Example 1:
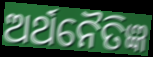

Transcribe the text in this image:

ଅର୍ଥନୈତିଜ୍ଞ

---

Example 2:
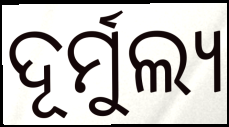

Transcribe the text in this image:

ଦୂର୍ମୁଲ୍ୟ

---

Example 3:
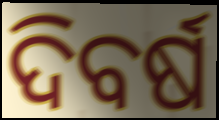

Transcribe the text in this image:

ଦିବର୍ଷ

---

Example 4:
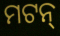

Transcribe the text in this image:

ମଟନ୍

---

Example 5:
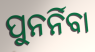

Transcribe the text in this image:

ପୁନର୍ନିବା